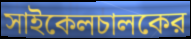
সাইকেলচালকের